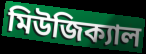
মিউজিক্যাল